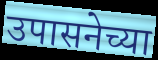
उपासनेच्या